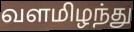
வளமிழந்து